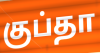
குப்தா